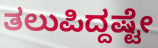
ತಲುಪಿದ್ದಷ್ಟೇ